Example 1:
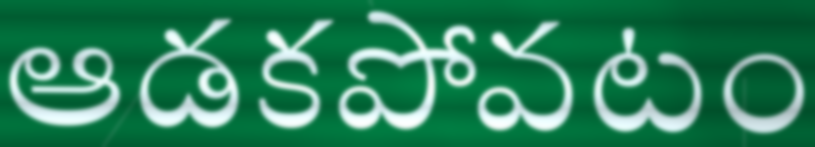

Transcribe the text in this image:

ఆడకపోవటం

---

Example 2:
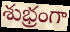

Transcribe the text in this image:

శుభ్రంగా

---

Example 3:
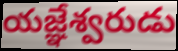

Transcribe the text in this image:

యజ్ఞేశ్వరుడు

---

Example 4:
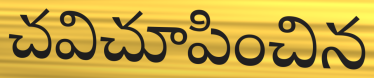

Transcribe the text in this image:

చవిచూపించిన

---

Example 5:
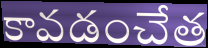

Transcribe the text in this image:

కావడంచేత